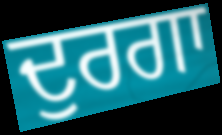
ਦੁਰਗਾ